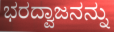
ಭರದ್ವಾಜನನ್ನು